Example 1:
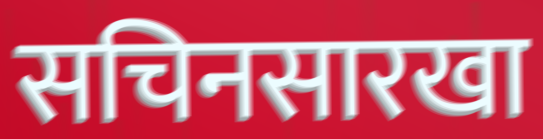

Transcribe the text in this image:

सचिनसारखा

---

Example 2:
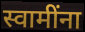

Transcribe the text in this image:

स्वामींना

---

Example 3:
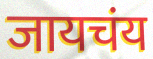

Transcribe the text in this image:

जायचंय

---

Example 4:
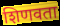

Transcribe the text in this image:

शिणवता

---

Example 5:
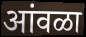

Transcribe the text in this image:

आंवळा